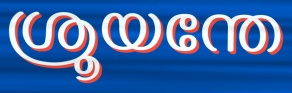
ശ്രൂയന്തേ